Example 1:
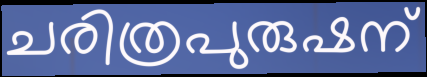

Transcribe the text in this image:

ചരിത്രപുരുഷന്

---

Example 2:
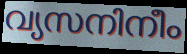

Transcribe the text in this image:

വ്യസനിനീം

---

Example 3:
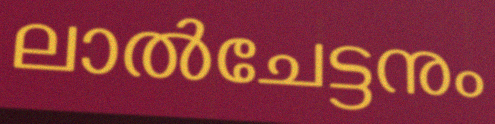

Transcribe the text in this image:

ലാൽചേട്ടനും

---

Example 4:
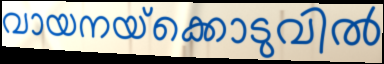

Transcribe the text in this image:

വായനയ്‌ക്കൊടുവിൽ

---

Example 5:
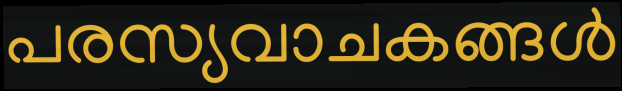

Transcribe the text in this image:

പരസ്യവാചകങ്ങൾ